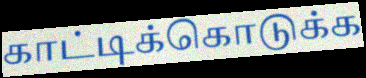
காட்டிக்கொடுக்க